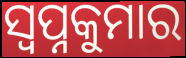
ସ୍ଵପ୍ନକୁମାର